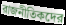
রাজনীতিকদের